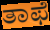
ತಾಫೆ